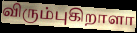
விரும்புகிறாளா